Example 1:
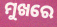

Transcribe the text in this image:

ମୁଖରେ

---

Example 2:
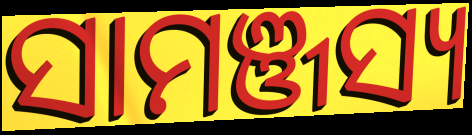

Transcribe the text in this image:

ସାମଞ୍ଜସ୍ୟ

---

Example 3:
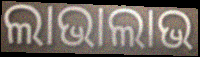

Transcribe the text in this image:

ଲାଭାଲାଭ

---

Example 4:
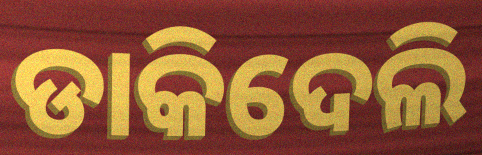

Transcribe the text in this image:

ଡାକିଦେଲି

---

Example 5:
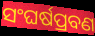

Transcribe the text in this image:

ସଂଘର୍ଷପ୍ରବଣ